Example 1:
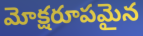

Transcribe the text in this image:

మోక్షరూపమైన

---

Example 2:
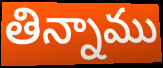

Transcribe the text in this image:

తిన్నాము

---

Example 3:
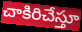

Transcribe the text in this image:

చాకిరిచేస్తూ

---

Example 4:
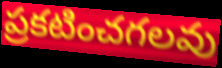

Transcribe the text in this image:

ప్రకటించగలవు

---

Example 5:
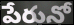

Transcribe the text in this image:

పేరునో